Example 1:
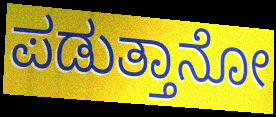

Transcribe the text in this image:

ಪಡುತ್ತಾನೋ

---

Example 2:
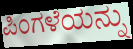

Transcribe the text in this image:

ಪಿಂಗಳೆಯನ್ನು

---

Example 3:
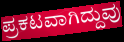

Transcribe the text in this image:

ಪ್ರಕಟವಾಗಿದ್ದುವು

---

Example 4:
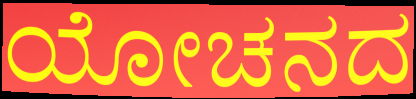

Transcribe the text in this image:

ಯೋಚನದ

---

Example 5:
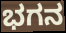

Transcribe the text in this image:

ಭಗನ